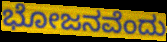
ಭೋಜನವೆಂದು